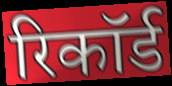
रिकॉर्ड